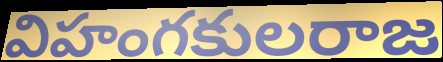
విహంగకులరాజ